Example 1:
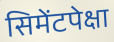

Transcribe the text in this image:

सिमेंटपेक्षा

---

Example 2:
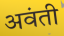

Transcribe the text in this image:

अवंती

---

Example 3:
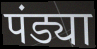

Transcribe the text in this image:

पंड्या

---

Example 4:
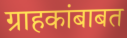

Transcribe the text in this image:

ग्राहकांबाबत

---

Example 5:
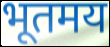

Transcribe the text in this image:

भूतमय